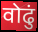
वोढुं